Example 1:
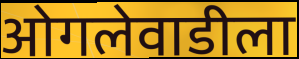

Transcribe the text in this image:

ओगलेवाडीला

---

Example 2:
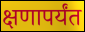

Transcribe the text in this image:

क्षणापर्यंत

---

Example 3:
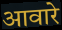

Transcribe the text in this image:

आवारे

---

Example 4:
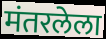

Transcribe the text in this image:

मंतरलेला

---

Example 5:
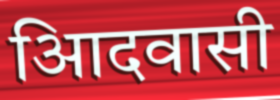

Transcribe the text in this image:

आिदवासी